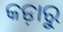
କଡ଼ାରୁ